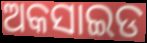
ଅକସାଇଡ